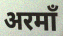
अरमाँ